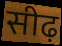
सीढ़